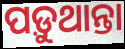
ପଡ଼ୁଥାନ୍ତା